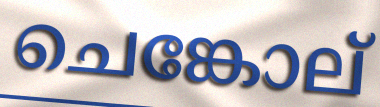
ചെങ്കോല്